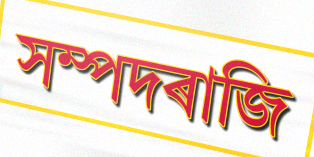
সম্পদৰাজি